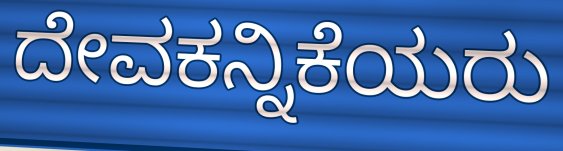
ದೇವಕನ್ನಿಕೆಯರು